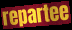
repartee